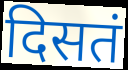
दिसतं